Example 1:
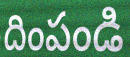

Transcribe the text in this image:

దింపండి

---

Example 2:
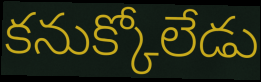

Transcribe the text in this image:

కనుక్కోలేడు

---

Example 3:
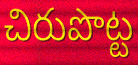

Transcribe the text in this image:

చిరుపొట్ట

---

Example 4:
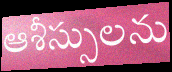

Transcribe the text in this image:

ఆశీస్సులను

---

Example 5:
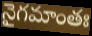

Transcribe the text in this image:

నైగమాంతః